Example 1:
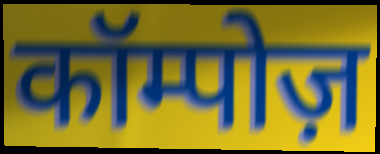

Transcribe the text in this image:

कॉम्पोज़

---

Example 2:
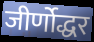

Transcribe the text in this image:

जीर्णोद्धर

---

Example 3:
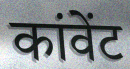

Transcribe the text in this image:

कांवेंट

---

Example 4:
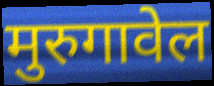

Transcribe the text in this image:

मुरुगावेल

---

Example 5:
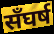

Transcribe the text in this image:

सँघर्ष